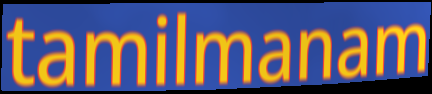
tamilmanam